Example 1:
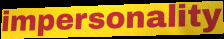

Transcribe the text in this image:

impersonality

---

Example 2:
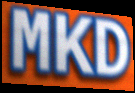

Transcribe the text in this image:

MKD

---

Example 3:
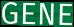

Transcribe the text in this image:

GENE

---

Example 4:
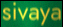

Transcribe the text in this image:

sivaya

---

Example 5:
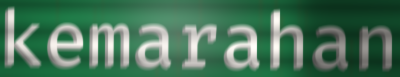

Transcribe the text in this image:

kemarahan